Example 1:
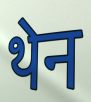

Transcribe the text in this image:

थेन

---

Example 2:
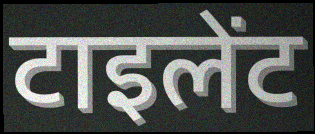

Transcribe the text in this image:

टाइलेंट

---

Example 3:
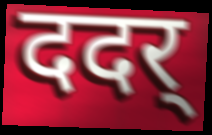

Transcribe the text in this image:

ददर्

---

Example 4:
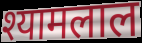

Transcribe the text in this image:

श्यामलाल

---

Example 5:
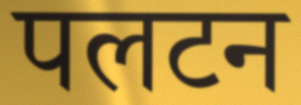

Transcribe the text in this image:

पलटन